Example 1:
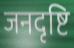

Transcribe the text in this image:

जनदृष्टि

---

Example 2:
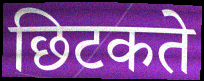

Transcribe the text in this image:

छिटकते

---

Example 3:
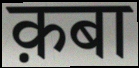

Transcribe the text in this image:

क़बा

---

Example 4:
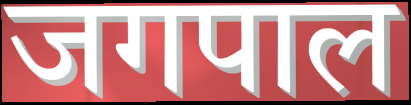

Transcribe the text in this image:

जगपाल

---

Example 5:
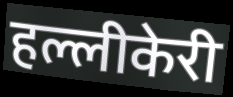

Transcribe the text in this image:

हल्लीकेरी